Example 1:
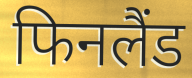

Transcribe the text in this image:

फिनलैंड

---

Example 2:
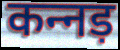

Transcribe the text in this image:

कन्नड़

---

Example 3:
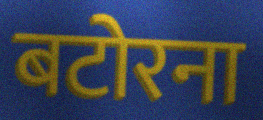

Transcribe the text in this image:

बटोरना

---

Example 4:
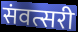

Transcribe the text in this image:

संवत्सरी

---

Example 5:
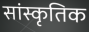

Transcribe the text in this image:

सांस्‍कृतिक